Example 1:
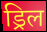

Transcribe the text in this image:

ड्रिल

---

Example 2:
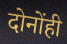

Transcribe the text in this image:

दोनोंही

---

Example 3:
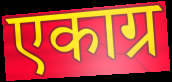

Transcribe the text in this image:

एकाग्र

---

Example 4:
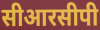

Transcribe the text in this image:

सीआरसीपी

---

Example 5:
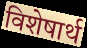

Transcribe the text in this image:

विशेषार्थ